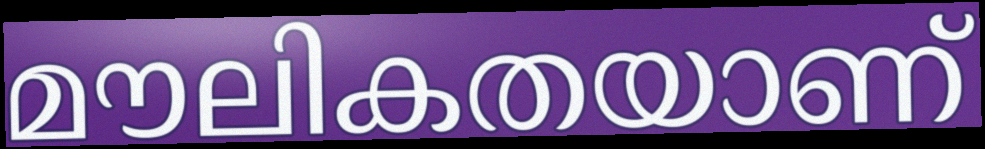
മൗലികതയാണ്